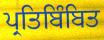
ਪ੍ਰਤਿਬਿੰਬਿਤ